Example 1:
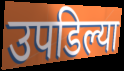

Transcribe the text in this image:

उपडिल्या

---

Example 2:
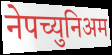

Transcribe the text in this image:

नेपच्युनिअम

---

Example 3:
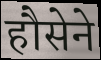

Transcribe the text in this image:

हौसेने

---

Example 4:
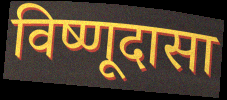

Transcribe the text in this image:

विष्णूदासा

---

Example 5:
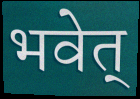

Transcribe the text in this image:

भवेत्